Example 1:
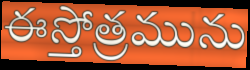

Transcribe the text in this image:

ఈస్తోత్రమును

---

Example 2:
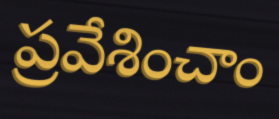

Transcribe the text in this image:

ప్రవేశించాం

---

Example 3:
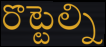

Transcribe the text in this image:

రొట్టెల్ని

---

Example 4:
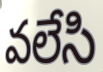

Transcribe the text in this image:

వలేసి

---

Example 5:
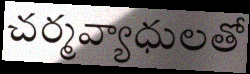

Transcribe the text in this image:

చర్మవ్యాధులతో